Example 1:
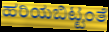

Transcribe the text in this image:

ಹರಿಯಬಿಟ್ಟಂತೆ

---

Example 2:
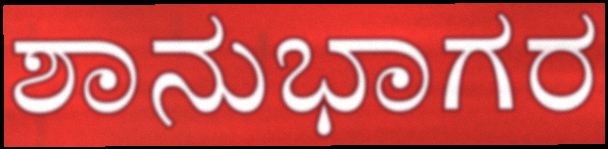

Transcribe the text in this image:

ಶಾನುಭಾಗರ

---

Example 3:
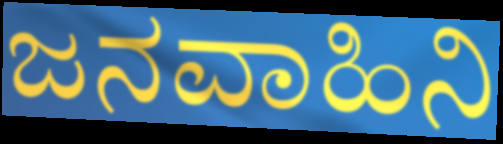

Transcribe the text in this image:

ಜನವಾಹಿನಿ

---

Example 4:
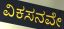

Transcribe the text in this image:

ವಿಕಸನವೇ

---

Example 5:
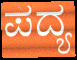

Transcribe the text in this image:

ಪದ್ಯ